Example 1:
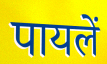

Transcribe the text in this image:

पायलें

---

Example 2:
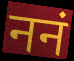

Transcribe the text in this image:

ननं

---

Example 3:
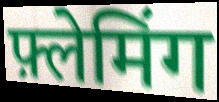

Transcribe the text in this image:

फ़्लेमिंग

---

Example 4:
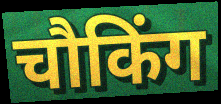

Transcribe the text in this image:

चौकिंग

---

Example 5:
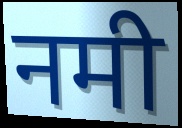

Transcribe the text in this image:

नमी